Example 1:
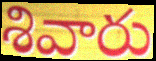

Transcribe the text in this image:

శివారు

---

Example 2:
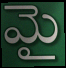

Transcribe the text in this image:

మై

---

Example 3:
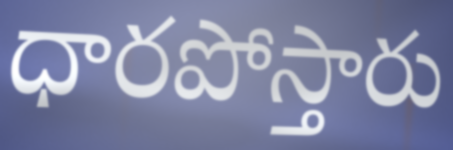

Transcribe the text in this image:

ధారపోస్తారు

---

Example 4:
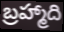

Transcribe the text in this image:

బ్రహ్మాది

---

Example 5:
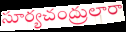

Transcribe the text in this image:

సూర్యచంద్రులారా